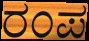
ರಂಪ